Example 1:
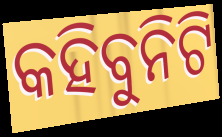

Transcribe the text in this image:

କହିବୁନିଟି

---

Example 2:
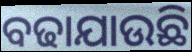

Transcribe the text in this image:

ବଢାଯାଉଛି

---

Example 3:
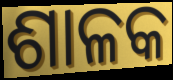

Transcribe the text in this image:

ଶାଳକ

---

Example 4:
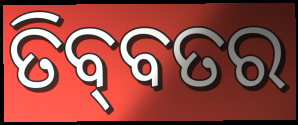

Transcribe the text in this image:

ତିବ୍‌ବତର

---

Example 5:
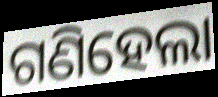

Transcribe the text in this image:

ଗଣିହେଲା